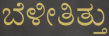
ಬೆಳೀತಿತ್ತು